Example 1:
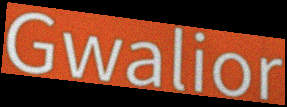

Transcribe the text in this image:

Gwalior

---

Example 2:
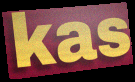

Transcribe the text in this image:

kas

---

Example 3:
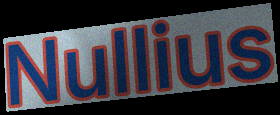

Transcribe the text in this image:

Nullius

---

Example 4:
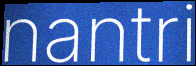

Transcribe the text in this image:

nantri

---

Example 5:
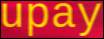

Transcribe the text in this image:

upay